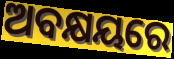
ଅବକ୍ଷୟରେ